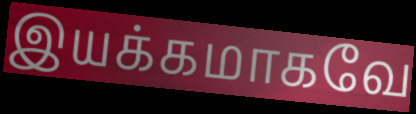
இயக்கமாகவே